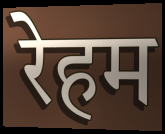
रेहम